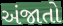
અંજાતો